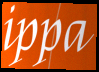
ippa